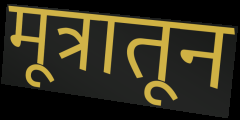
मूत्रातून